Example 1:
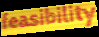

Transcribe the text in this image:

feasibility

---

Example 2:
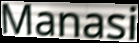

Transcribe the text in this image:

Manasi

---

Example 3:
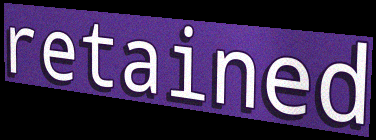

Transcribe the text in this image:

retained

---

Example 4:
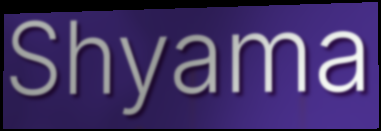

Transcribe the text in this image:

Shyama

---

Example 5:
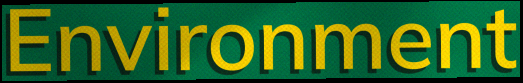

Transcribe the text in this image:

Environment